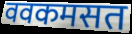
ववकमसत